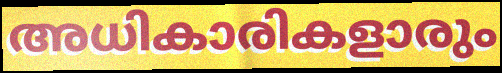
അധികാരികളാരും